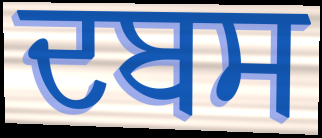
ਦਬਸ